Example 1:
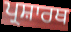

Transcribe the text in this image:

ਪ੍ਰਸ਼ਾਰਥ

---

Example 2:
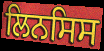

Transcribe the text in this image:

ਲਿਨਸਿਸ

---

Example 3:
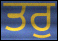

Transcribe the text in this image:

ਤਰੁ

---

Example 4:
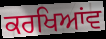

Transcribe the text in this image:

ਕਰਖਿਆਂਵ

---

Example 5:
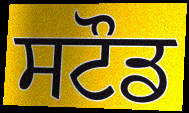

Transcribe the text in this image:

ਸਟੌਡ